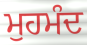
ਮੁਹਮੰਦ